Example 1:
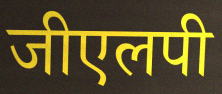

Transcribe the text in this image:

जीएलपी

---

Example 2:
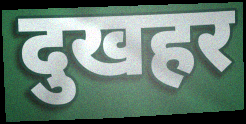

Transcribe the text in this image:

दुखहर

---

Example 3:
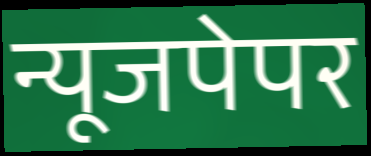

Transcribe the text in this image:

न्यूजपेपर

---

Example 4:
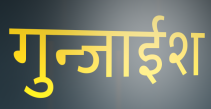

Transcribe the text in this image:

गुन्जाईश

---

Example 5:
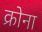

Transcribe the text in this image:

क्रोना